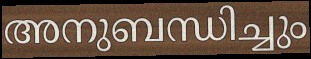
അനുബന്ധിച്ചും